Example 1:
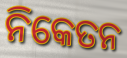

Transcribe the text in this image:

ନିକେତନ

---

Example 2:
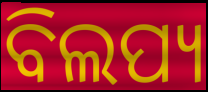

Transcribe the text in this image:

ବିଲପ୍ୟ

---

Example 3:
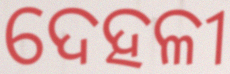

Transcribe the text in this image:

ଦେହଳୀ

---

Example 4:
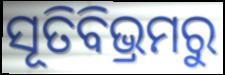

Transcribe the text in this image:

ସୂତିବିଭ୍ରମରୁ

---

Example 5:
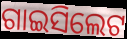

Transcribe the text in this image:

ଗାଇସିଲେଟ